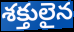
శక్తులైన